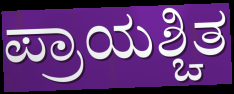
ಪ್ರಾಯಶ್ಚಿತ